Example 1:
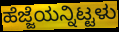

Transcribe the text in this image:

ಹೆಜ್ಜೆಯನ್ನಿಟ್ಟಳು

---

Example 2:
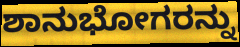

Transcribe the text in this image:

ಶಾನುಭೋಗರನ್ನು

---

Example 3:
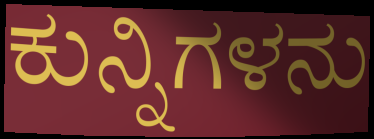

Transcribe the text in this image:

ಕುನ್ನಿಗಳನು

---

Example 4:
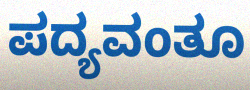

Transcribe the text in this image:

ಪದ್ಯವಂತೂ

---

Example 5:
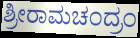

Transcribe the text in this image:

ಶ್ರೀರಾಮಚಂದ್ರಂ